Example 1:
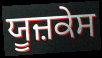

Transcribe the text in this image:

ਯੂਜ਼ਕੇਸ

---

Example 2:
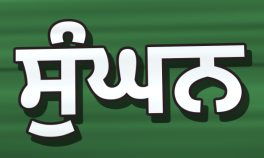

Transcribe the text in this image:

ਸੁੰਘਨ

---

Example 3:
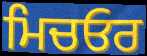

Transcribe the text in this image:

ਮਿਚਓਰ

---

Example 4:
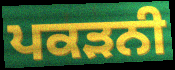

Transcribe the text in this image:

ਪਕੜਨੀ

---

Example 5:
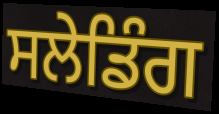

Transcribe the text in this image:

ਸਲੇਡਿੰਗ